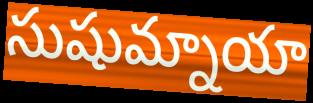
సుషుమ్నాయా